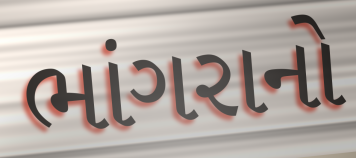
ભાંગરાનો